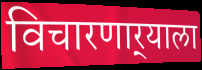
विचारणार्याला